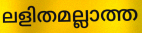
ലളിതമല്ലാത്ത